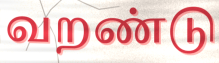
வறண்டு